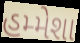
હમ્મેશા